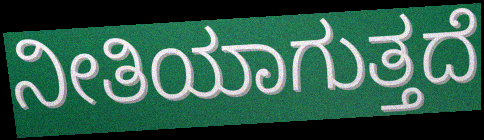
ನೀತಿಯಾಗುತ್ತದೆ